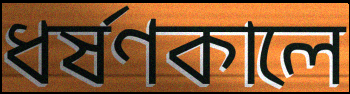
ধর্ষণকালে